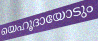
യെഹൂദായോടും